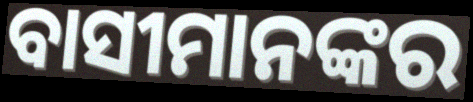
ବାସୀମାନଙ୍କର